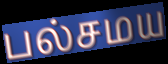
பல்சமய